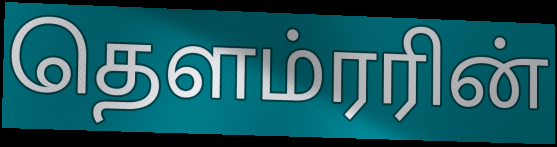
தௌம்ரரின்